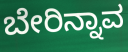
ಬೇರಿನ್ನಾವ